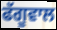
ਫੱਗੂਵਾਲ